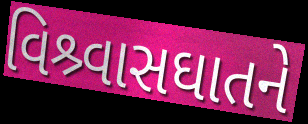
વિશ્ર્વાસઘાતને